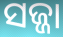
ସଜ୍ଜା